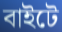
বাইটে